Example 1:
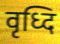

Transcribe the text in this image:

वृध्दि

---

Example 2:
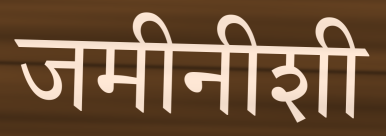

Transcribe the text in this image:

जमीनीशी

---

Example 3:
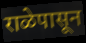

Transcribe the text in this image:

राळेपासून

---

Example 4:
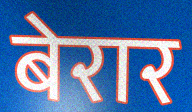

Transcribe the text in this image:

बेरार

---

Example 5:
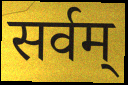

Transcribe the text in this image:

सर्वम्